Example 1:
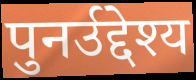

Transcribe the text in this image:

पुनर्उद्देश्य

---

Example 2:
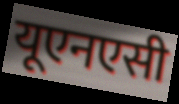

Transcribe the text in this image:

यूएनएसी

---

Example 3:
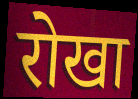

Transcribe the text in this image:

रोखा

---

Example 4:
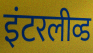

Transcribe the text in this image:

इंटरलीव्ड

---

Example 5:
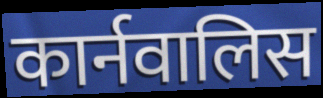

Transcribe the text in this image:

कार्नवालिस